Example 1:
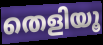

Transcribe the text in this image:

തെളിയൂ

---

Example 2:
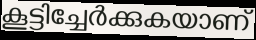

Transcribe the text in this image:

കൂട്ടിച്ചേർക്കുകയാണ്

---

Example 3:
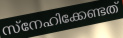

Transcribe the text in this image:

സ്‌നേഹിക്കേണ്ടത്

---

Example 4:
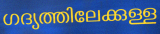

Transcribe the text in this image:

ഗദ്യത്തിലേക്കുള്ള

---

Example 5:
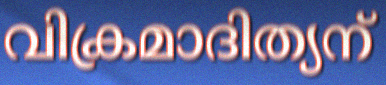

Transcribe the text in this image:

വിക്രമാദിത്യന്